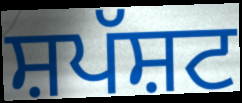
ਸ਼ਪੱਸ਼ਟ